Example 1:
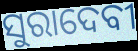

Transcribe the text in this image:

ସୁରାଦେବୀ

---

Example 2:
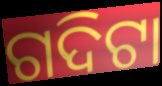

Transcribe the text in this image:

ଗଦିଟା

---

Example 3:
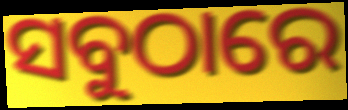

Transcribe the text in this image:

ସବୁଠାରେ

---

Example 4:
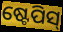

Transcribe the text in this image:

ଷ୍ଟେପିସ୍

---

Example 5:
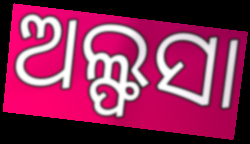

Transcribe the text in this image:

ଅଲ୍ଫସା